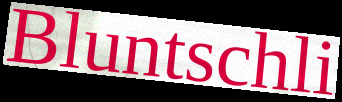
Bluntschli